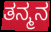
ತನ್ಮನ